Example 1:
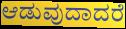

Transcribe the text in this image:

ಆಡುವುದಾದರೆ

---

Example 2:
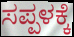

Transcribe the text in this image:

ಸಪ್ಪಳಕ್ಕೆ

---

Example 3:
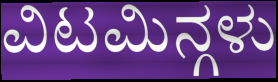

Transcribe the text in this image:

ವಿಟಮಿನ್ಗಳು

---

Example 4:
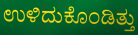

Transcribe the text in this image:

ಉಳಿದುಕೊಂಡಿತ್ತು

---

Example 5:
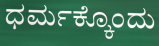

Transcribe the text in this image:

ಧರ್ಮಕ್ಕೊಂದು